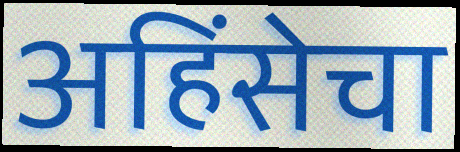
अहिंसेचा